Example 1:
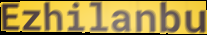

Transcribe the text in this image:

Ezhilanbu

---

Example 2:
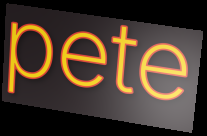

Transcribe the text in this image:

pete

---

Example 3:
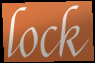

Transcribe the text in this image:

lock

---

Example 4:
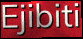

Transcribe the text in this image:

Ejibiti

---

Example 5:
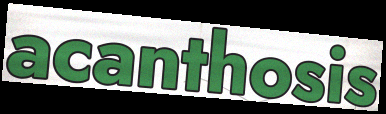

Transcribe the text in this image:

acanthosis